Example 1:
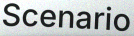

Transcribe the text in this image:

Scenario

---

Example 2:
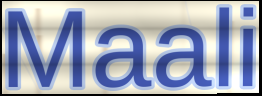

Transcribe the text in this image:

Maali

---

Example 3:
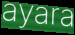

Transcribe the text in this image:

ayara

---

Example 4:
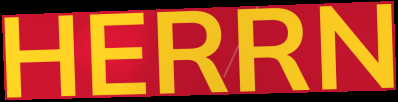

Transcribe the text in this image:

HERRN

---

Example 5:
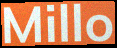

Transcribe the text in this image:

Millo